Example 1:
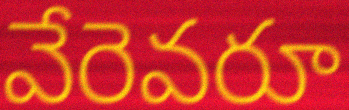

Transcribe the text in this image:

వేరెవరూ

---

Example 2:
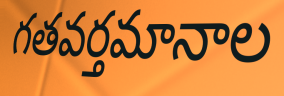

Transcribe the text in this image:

గతవర్తమానాల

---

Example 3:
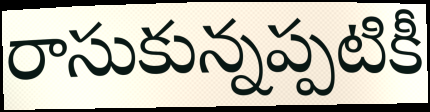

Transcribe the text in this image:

రాసుకున్నప్పటికీ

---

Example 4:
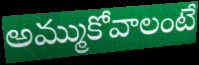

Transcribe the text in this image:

అమ్ముకోవాలంటే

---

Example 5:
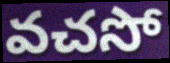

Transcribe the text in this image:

వచసో